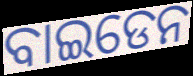
ବାଇଡେନ